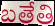
బతేతి